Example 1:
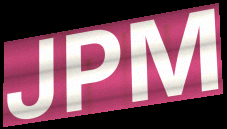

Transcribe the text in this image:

JPM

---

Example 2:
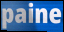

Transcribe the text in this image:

paine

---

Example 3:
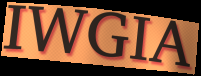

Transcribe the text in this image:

IWGIA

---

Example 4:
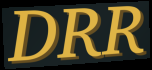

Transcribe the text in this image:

DRR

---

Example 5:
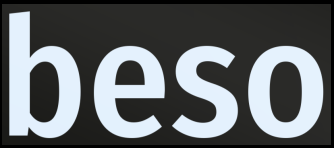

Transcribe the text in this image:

beso